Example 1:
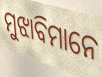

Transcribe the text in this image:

ମୁଝାବିମାନେ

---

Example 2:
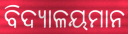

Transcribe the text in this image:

ବିଦ୍ୟାଳୟମାନ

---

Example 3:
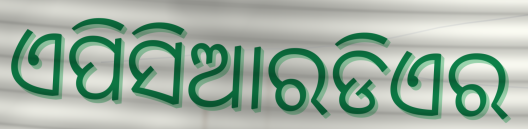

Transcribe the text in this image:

ଏପିସିଆରଡିଏର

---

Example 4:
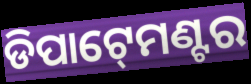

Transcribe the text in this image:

ଡିପାଟ୍‍ମେଣ୍ଟର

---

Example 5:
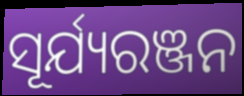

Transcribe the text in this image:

ସୂର୍ଯ୍ୟରଞ୍ଜନ